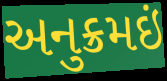
અનુક્રમઇં